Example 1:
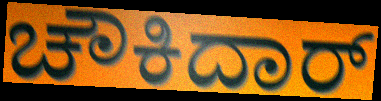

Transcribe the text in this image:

ಚೌಕಿದಾರ್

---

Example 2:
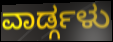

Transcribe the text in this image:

ವಾರ್ಡ್ಗಳು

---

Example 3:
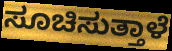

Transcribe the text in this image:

ಸೂಚಿಸುತ್ತಾಳೆ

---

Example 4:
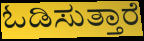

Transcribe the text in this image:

ಓಡಿಸುತ್ತಾರೆ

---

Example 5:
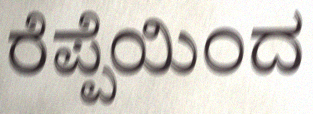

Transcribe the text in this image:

ರೆಪ್ಪೆಯಿಂದ